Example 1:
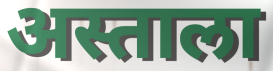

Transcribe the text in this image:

अस्ताला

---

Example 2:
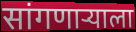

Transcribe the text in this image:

सांगणार्‍याला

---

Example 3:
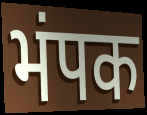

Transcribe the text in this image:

भंपक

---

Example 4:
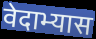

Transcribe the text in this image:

वेदाभ्यास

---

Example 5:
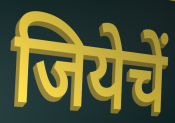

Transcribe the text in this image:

जियेचें